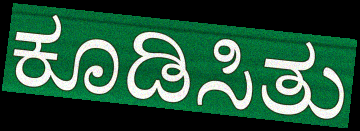
ಕೂಡಿಸಿತು